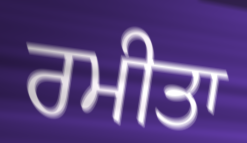
ਰਮੀਤਾ